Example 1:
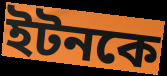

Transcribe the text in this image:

ইটনকে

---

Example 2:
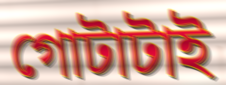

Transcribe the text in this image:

গোটাটাই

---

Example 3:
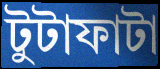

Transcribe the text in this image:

টুটাফাটা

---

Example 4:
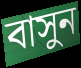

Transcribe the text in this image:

বাসুন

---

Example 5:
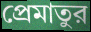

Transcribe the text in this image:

প্রেমাতুর